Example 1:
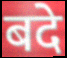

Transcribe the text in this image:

बदे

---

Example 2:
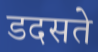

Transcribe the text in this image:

डदसते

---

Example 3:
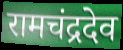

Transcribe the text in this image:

रामचंद्रदेव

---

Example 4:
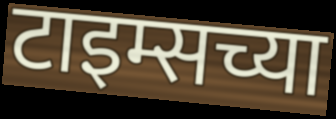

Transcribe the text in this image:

टाइम्सच्या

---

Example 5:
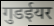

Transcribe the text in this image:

गुडईयर